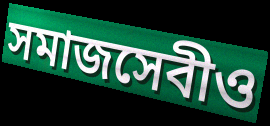
সমাজসেবীও